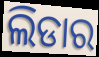
ଲିଡାର